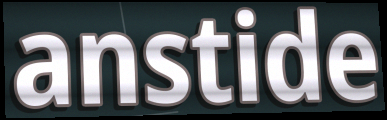
anstide